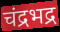
चंद्रभद्र